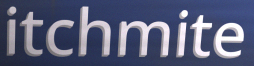
itchmite